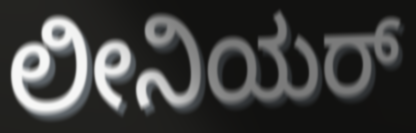
ಲೀನಿಯರ್